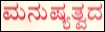
ಮನುಷ್ಯತ್ವದ